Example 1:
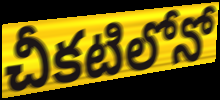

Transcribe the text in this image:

చీకటిలోనో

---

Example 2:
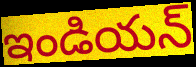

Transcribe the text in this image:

ఇండియన్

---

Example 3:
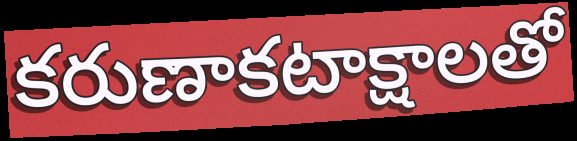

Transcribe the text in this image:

కరుణాకటాక్షాలతో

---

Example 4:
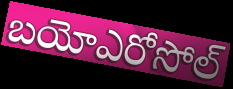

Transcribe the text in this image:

బయోఎరోసోల్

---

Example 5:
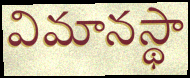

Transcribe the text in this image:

విమానస్థా